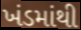
ખંડમાંથી